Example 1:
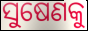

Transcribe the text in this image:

ସୁଷେଣକୁ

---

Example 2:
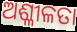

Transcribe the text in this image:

ଅଶ୍ଳୀଳତା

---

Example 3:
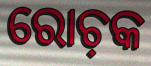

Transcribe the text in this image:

ରୋଚ଼କ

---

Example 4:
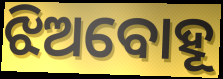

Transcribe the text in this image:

ଝିଅବୋହୂ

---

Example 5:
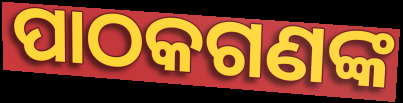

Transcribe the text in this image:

ପାଠକଗଣଙ୍କ